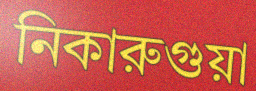
নিকারুগুয়া